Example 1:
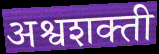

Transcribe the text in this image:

अश्वशक्ती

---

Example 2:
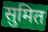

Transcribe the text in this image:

सुमित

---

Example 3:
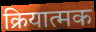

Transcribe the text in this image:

क्रियात्मक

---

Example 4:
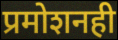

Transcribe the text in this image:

प्रमोशनही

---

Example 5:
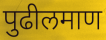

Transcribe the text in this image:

पुढीलमाण